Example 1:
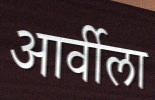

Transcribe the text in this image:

आर्वीला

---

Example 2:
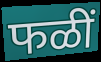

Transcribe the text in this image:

फळीं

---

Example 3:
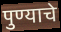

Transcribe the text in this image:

पुण्याचे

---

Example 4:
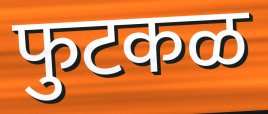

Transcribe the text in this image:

फुटकळ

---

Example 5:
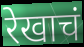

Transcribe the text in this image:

रेखाचं